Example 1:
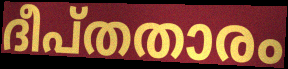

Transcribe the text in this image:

ദീപ്തതാരം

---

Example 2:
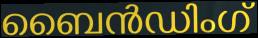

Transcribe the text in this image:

ബൈൻഡിംഗ്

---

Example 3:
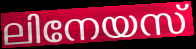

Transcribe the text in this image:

ലിനേയസ്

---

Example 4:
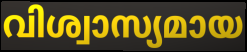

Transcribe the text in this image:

വിശ്വാസ്യമായ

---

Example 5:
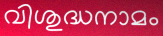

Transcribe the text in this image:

വിശുദ്ധനാമം